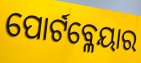
ପୋର୍ଟବ୍ଳେୟାର